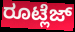
ರೂಟ್ಲೆಜ್